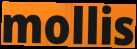
mollis